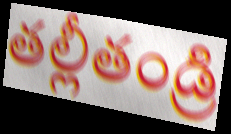
తల్లీతండ్రి